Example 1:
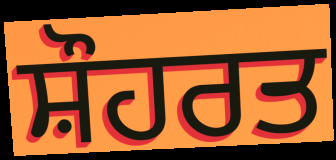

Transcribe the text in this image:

ਸ਼ੌਹਰਤ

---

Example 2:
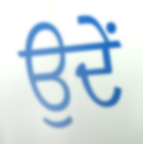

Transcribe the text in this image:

ਉਦੇਂ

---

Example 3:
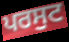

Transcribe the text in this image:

ਪਰਸੁਟ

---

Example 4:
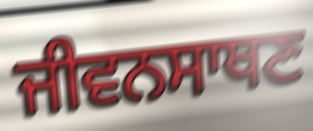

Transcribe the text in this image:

ਜੀਵਨਸਾਥਣ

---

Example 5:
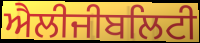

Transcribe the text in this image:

ਐਲੀਜੀਬਲਿਟੀ